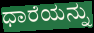
ಧಾರೆಯನ್ನು